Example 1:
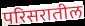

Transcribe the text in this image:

परिसरातील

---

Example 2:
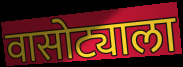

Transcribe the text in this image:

वासोट्याला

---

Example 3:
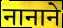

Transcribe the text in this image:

नानाने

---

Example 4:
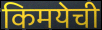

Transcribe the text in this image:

किमयेची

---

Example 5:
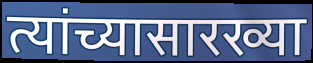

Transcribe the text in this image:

त्यांच्यासारख्या